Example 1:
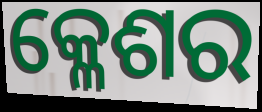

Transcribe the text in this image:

କ୍ଳେଶର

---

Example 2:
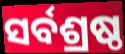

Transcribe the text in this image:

ସର୍ବଶ୍ରଷ୍ଠ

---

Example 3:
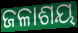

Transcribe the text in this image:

ଜଳାଶୟ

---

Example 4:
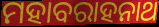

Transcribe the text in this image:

ମହାବରାହନାଥ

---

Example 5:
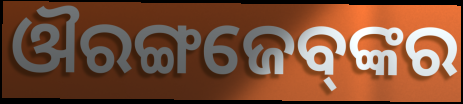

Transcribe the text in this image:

ଔରଙ୍ଗଜେବ୍‌ଙ୍କର